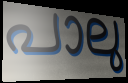
പാലു